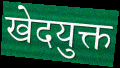
खेदयुक्त